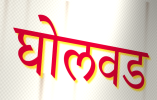
घोलवड